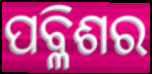
ପବ୍ଳିଶର